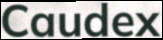
Caudex